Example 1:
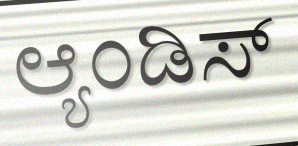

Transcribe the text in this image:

ಆ್ಯಂಡಿಸ್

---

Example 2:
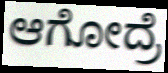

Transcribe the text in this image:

ಆಗೋದ್ರೆ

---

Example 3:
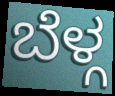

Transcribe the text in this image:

ಬೆಳ್ಗ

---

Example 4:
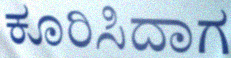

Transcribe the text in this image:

ಕೂರಿಸಿದಾಗ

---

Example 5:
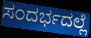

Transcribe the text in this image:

ಸಂದರ್ಭದಲ್ಲೆ